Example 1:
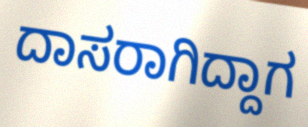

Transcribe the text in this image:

ದಾಸರಾಗಿದ್ದಾಗ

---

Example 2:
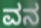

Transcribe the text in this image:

ವನ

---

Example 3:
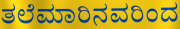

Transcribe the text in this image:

ತಲೆಮಾರಿನವರಿಂದ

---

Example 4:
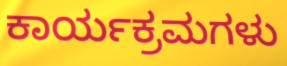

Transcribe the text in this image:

ಕಾರ್ಯಕ್ರಮಗಳು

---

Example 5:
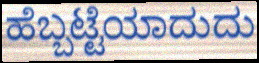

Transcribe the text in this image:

ಹೆಬ್ಬಟ್ಟೆಯಾದುದು